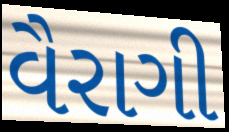
વૈરાગી